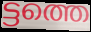
ട്ടത്തെ